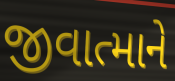
જીવાત્માને